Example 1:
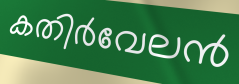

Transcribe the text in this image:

കതിർവേലൻ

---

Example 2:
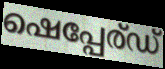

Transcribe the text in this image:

ഷെപ്പേര്ഡ്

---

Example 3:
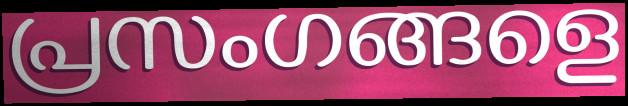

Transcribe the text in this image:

പ്രസംഗങ്ങളെ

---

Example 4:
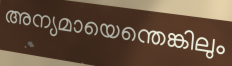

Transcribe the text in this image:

അന്യമായെന്തെങ്കിലും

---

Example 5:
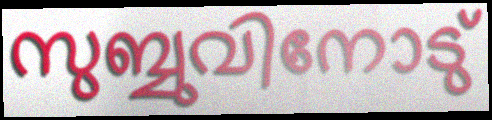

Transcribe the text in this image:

സുബ്ബുവിനോടു്